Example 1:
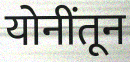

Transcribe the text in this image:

योनींतून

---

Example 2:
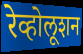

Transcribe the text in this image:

रेव्होलूशन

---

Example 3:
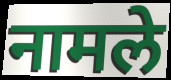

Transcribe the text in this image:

नामले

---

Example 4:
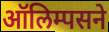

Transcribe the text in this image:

ऑलिम्पसने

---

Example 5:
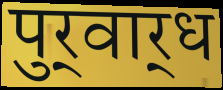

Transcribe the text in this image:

पुर्वार्ध